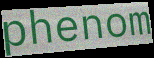
phenom